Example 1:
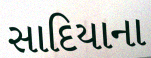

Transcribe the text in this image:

સાદિયાના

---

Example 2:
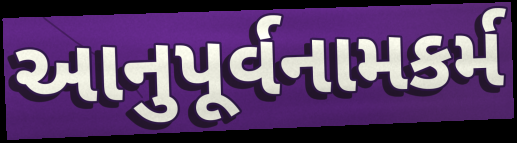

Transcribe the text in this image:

આનુપૂર્વનામકર્મ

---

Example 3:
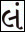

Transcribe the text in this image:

લં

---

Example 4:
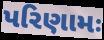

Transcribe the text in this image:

પરિણામઃ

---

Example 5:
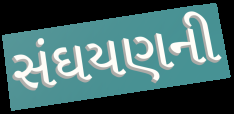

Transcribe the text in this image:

સંઘયણની